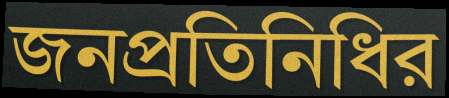
জনপ্রতিনিধির